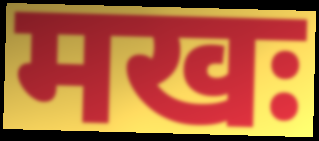
मखः